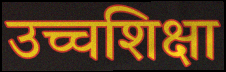
उच्‍चशिक्षा